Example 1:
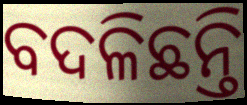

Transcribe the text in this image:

ବଦଳିଛନ୍ତି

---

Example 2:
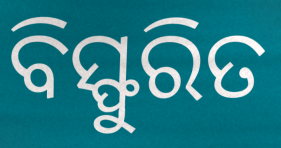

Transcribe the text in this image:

ବିସ୍ଫୁରିତ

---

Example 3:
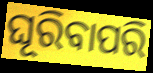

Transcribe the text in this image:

ଘୂରିବାପରି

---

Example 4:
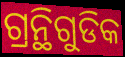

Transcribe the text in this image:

ଗ୍ରନ୍ଥିଗୁଡିକ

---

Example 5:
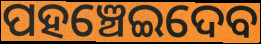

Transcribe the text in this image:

ପହଞ୍ଚେଇଦେବ